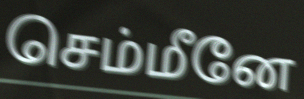
செம்மீனே